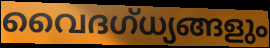
വൈദഗ്ധ്യങ്ങളും